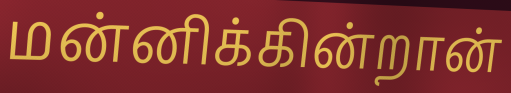
மன்னிக்கின்றான்